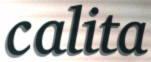
calita